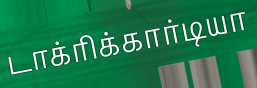
டாக்ரிக்கார்டியா